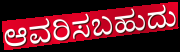
ಆವರಿಸಬಹುದು